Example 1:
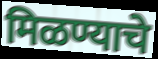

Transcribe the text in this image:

मिळण्याचे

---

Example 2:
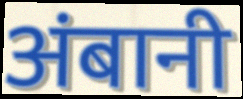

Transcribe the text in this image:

अंबानी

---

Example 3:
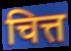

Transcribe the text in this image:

चित्त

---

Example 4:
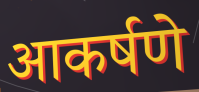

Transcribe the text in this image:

आकर्षणे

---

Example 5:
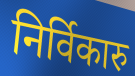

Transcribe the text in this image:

निर्विकारु